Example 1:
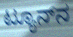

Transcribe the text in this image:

ಟ್ಯೂನ್‌ನ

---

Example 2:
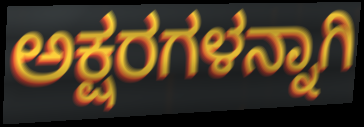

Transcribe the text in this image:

ಅಕ್ಷರಗಳನ್ನಾಗಿ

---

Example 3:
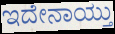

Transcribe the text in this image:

ಇದೇನಾಯ್ತು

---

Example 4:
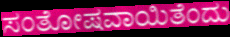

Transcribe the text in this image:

ಸಂತೋಷವಾಯಿತೆಂದು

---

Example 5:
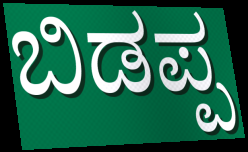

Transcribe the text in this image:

ಬಿಡಪ್ಪ